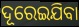
ଦୂରେଇଯିବା